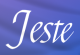
Jeste